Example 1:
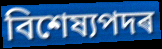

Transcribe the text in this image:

বিশেষ্যপদৰ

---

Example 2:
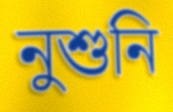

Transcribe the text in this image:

নুশুনি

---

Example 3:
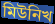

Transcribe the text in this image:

মিউনিখ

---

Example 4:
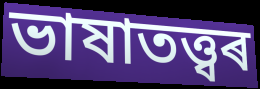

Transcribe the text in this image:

ভাষাতত্ত্বৰ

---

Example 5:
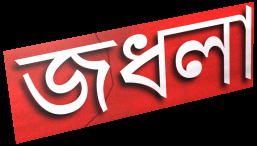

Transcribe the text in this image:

জধলা